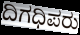
ದಿಗಧಿಪರು